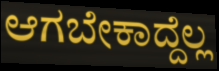
ಆಗಬೇಕಾದ್ದೆಲ್ಲ